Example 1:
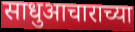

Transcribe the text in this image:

साधुआचाराच्या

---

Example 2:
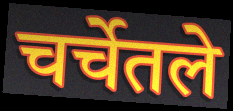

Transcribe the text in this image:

चर्चेतले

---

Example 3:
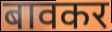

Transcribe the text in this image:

बावकर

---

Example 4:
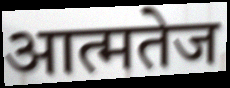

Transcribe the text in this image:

आत्मतेज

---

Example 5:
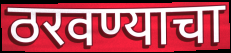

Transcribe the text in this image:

ठरवण्याचा